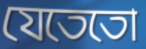
যেতেতো